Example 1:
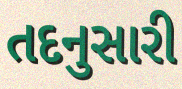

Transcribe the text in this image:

તદનુસારી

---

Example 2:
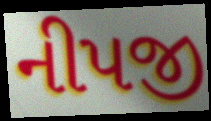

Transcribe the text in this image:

નીપજી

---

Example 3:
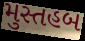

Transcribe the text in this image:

મુસ્તહબ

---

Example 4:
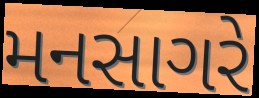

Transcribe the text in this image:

મનસાગરે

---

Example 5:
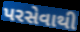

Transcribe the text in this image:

પરસેવાથી